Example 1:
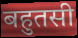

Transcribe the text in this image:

बहुतसी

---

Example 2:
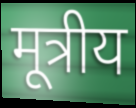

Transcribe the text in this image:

मूत्रीय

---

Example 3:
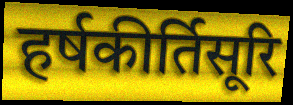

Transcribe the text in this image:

हर्षकीर्तिसूरि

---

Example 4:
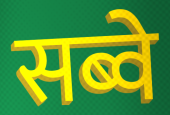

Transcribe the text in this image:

सब्वे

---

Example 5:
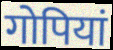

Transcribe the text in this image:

गोपियां